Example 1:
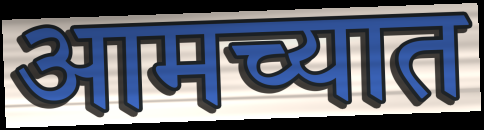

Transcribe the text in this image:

आमच्यात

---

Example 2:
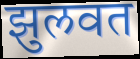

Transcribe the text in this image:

झुलवत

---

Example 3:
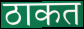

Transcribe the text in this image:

ठाकत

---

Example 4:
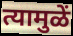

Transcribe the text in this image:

त्यामुळें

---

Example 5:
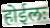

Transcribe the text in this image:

होईलः